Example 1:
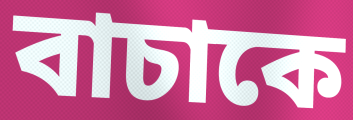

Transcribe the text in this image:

বাচাকে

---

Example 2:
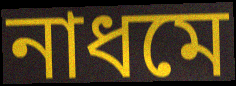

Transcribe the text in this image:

নাধমে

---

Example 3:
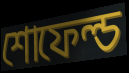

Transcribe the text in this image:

শোফেল্ড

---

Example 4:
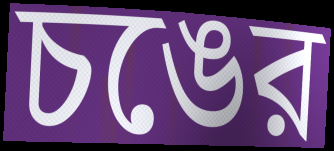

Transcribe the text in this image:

চঙের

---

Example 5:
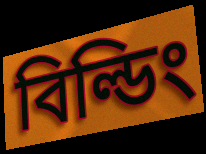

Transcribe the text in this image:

বিল্ডিং